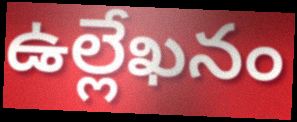
ఉల్లేఖనం